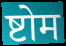
ष्टोम